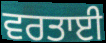
ਵਰਤਾਈ